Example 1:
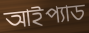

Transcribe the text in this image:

আইপ্যাড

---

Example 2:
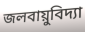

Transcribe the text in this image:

জলবায়ুবিদ্যা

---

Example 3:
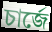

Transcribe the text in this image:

চার্জে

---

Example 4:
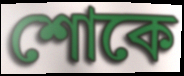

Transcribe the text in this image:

শোকে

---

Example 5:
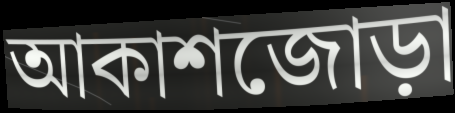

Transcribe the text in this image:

আকাশজোড়া